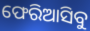
ଫେରିଆସିବୁ